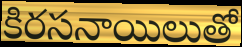
కిరసనాయిలుతో